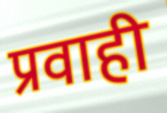
प्रवाही